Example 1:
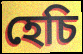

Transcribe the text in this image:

হেচি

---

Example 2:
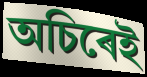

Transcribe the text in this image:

অচিৰেই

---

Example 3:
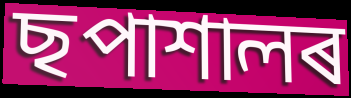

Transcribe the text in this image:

ছপাশালৰ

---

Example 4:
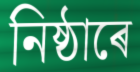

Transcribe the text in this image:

নিষ্ঠাৰে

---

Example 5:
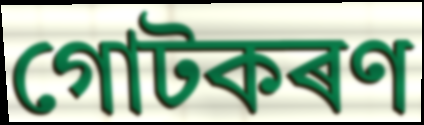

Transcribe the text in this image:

গোটকৰণ